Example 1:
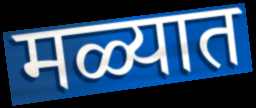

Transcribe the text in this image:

मळ्यात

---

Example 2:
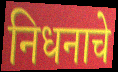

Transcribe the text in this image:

निधनाचे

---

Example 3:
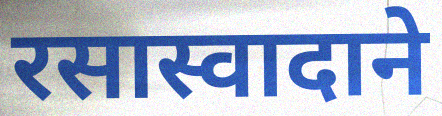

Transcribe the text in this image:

रसास्वादाने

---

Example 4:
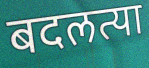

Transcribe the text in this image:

बदलत्या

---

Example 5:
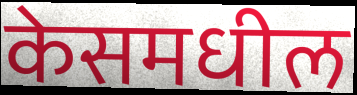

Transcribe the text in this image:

केसमधील